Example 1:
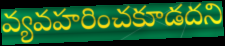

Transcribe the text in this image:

వ్యవహరించకూడదని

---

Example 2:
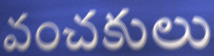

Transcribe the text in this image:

వంచకులు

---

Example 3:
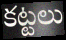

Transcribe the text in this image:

కట్టలు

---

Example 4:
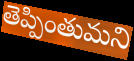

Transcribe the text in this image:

తెప్పింతుమని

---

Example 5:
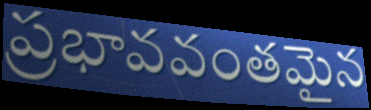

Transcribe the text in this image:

ప్రభావవంతమైన